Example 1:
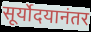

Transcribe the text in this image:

सूर्योदयानंतर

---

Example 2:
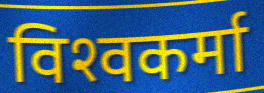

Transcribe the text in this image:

विश्वकर्मा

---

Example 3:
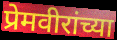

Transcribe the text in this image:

प्रेमवीरांच्या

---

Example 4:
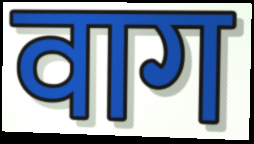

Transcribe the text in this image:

वाग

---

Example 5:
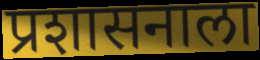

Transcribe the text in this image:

प्रशासनाला